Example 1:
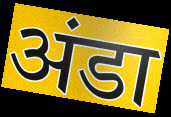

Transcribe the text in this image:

अंडा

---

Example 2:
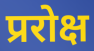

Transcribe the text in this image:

प्ररोक्ष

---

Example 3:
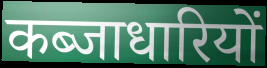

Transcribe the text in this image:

कब्जाधारियों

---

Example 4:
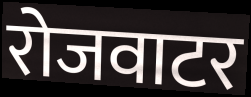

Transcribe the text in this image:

रोजवाटर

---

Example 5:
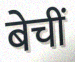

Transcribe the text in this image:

बेचीं